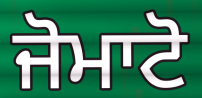
ਜੋਮਾਟੋ